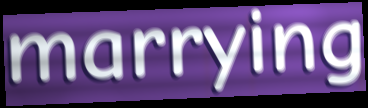
marrying